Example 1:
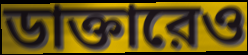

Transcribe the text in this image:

ডাক্তারেও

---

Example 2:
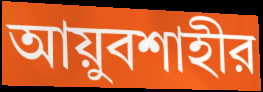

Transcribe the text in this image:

আয়ুবশাহীর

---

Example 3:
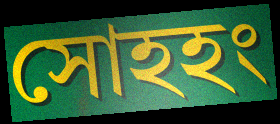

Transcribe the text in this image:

সোহহং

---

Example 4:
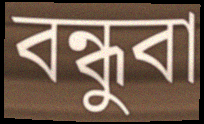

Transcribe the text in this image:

বন্ধুবা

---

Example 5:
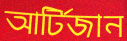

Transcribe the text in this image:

আর্টিজান